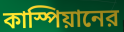
কাস্পিয়ানের